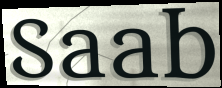
Saab